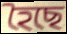
হৈছে